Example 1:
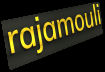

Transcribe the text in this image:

rajamouli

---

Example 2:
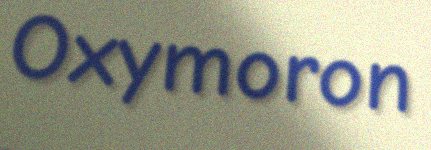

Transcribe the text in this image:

Oxymoron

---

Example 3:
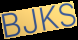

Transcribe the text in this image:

BJKS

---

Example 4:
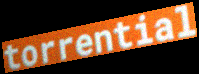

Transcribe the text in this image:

torrential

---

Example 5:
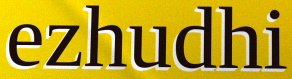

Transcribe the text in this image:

ezhudhi